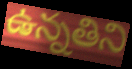
ఉన్నతిని